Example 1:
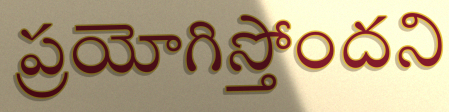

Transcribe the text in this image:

ప్రయోగిస్తోందని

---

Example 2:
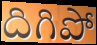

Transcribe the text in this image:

దిగిపో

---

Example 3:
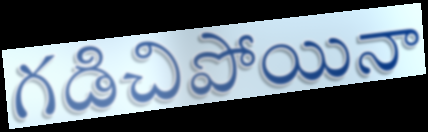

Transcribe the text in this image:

గడిచిపోయినా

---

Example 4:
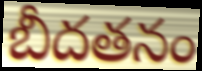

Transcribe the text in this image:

బీదతనం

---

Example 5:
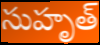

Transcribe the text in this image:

సుహృత్